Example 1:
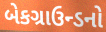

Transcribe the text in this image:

બેકગ્રાઉન્ડનો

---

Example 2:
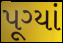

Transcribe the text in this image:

પૂગ્યાં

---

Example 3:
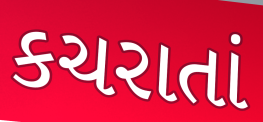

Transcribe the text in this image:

કચરાતાં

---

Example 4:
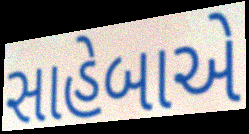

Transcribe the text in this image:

સાહેબાએ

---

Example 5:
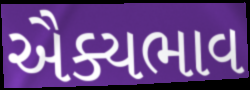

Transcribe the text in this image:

ઐક્યભાવ